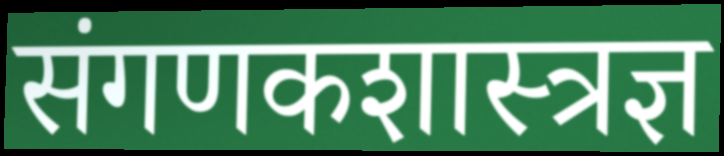
संगणकशास्त्रज्ञ